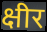
क्षीर